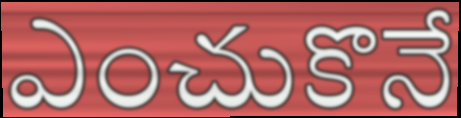
ఎంచుకొనే